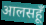
आलसहूँ